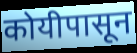
कोयीपासून